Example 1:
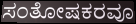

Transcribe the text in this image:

ಸಂತೋಷಕರವೂ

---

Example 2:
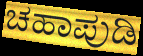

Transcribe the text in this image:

ಚಹಾಪುಡಿ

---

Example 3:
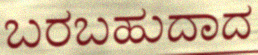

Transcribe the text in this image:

ಬರಬಹುದಾದ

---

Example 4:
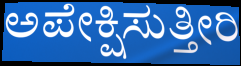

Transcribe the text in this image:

ಅಪೇಕ್ಷಿಸುತ್ತೀರಿ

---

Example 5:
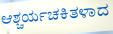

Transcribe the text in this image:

ಆಶ್ಚರ್ಯಚಕಿತಳಾದ